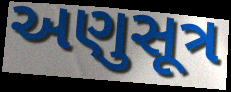
અણુસૂત્ર